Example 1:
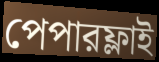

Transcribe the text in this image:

পেপারফ্লাই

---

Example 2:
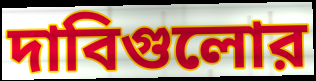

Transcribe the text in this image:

দাবিগুলোর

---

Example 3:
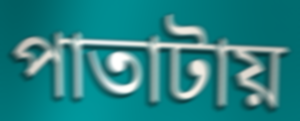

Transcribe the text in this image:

পাতাটায়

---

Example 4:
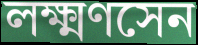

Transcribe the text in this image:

লক্ষ্মণসেন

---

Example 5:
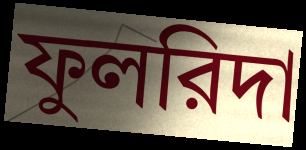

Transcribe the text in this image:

ফুলরিদা